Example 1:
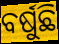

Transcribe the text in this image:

ବର୍ଷୁଛି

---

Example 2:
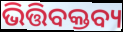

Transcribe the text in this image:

ଭିତ୍ତିବକ୍ତବ୍ୟ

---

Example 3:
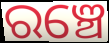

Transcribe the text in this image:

ରଞ୍ଚେ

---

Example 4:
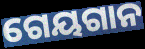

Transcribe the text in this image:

ଗେୟଗାନ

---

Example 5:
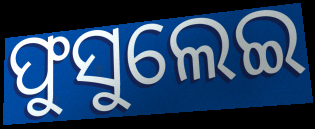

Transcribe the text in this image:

ଫୁସୁଲେଇ